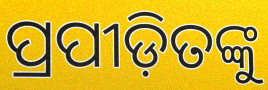
ପ୍ରପୀଡ଼ିତଙ୍କୁ